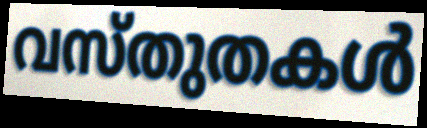
വസ്തുതകൾ